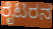
ರೈಟರನ